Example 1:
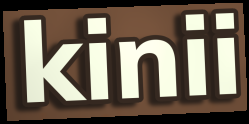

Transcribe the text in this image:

kinii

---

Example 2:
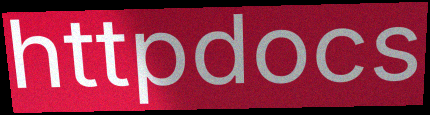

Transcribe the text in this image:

httpdocs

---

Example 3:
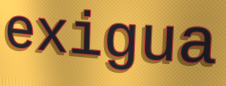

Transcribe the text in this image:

exigua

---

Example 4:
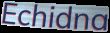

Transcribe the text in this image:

Echidna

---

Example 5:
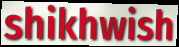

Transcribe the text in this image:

shikhwish